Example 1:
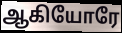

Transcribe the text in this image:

ஆகியோரே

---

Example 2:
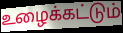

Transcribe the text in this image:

உழைக்கட்டும்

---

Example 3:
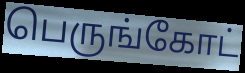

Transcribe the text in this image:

பெருங்கோட்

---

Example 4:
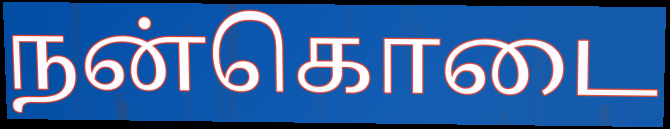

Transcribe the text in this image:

நன்கொடை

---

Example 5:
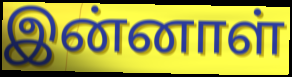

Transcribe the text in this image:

இன்னாள்